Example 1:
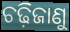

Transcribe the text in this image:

ଚଢ଼ିଜାଣୁ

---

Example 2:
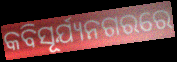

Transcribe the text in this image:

କବିସୂର୍ଯ୍ୟନଗରରେ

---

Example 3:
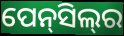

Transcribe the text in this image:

ପେନ୍‌ସିଲ୍‌ର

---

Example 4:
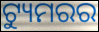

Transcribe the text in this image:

ଟ୍ୟୁମରର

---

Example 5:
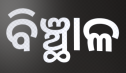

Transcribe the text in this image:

ବିଞ୍ଛାଳ